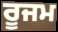
ਰੂਜਮ